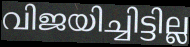
വിജയിച്ചിട്ടില്ല